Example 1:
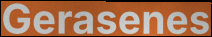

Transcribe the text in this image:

Gerasenes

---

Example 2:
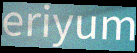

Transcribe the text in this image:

eriyum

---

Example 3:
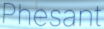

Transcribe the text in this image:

Phesant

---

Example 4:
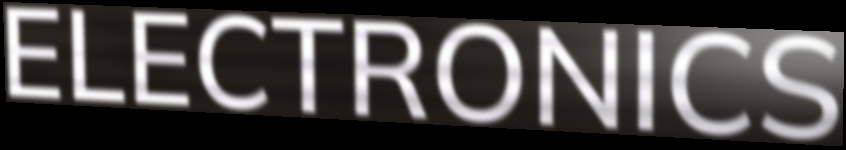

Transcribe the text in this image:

ELECTRONICS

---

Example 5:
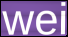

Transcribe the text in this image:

wei